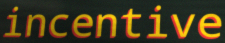
incentive